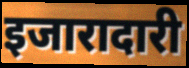
इजारादारी